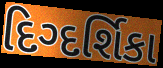
દિગ્દર્શિકા